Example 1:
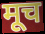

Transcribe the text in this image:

मूच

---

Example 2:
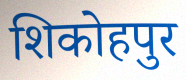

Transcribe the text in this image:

शिकोहपुर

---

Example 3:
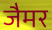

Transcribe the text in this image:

जैमर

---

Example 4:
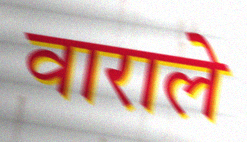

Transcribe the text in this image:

वाराले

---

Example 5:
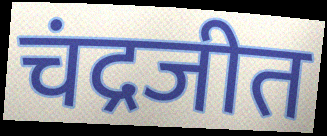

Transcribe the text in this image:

चंद्रजीत